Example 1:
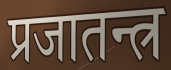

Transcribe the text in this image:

प्रजातन्त्र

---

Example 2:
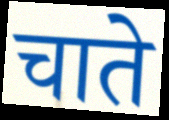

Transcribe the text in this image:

चाते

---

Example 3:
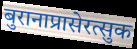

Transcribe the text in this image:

बुरानाप्रासेरत्सुक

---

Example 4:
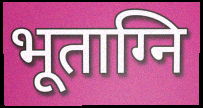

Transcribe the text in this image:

भूताग्नि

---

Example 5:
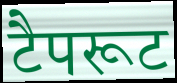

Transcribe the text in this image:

टैपरूट